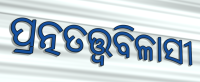
ପ୍ରତ୍ନତତ୍ତ୍ବବିଳାସୀ